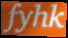
fyhk